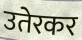
उतेरकर